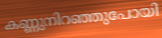
കണ്ണുനിറഞ്ഞുപോയി